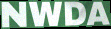
NWDA